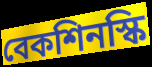
বেকশিনস্কি